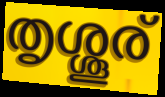
തൃശ്ശൂര്